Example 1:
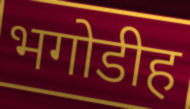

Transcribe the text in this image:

भगोडीह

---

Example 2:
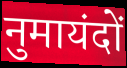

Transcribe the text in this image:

नुमायंदों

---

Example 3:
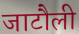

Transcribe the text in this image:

जाटौली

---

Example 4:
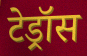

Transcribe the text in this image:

टेड्रॉस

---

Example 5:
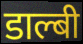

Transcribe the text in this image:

डाल्बी